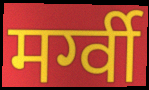
मर्ग्वी